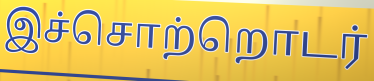
இச்சொற்றொடர்